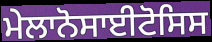
ਮੇਲਾਨੋਸਾਈਟੋਸਿਸ